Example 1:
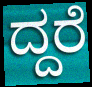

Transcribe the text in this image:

ದ್ದರೆ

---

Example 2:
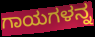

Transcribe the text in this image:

ಗಾಯಗಳನ್ನ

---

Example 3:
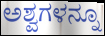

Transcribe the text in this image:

ಅಶ್ವಗಳನ್ನೂ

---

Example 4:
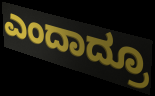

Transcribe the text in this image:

ಎಂದಾದ್ರೂ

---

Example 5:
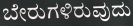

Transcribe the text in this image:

ಬೇರುಗಳಿರುವುದು